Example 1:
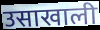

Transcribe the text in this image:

उसाखाली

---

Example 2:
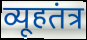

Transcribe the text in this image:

व्यूहतंत्र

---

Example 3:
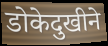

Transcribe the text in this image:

डोकेदुखीने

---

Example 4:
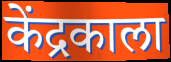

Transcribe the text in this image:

केंद्रकाला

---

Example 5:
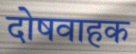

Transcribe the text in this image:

दोषवाहक